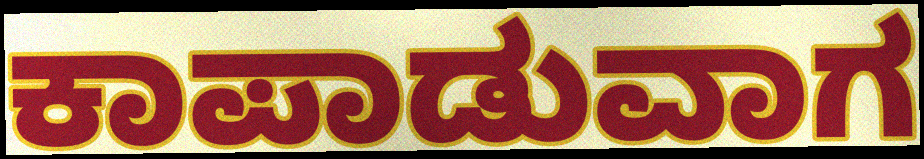
ಕಾಪಾಡುವಾಗ